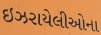
ઇઝરાયેલીઓના